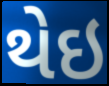
થેઇ